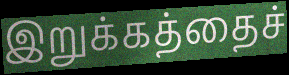
இறுக்கத்தைச்